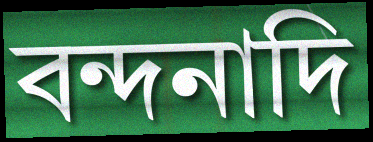
বন্দনাদি